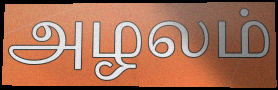
அழலம்